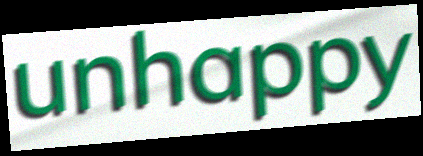
unhappy